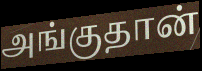
அங்குதான்